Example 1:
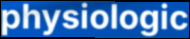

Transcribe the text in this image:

physiologic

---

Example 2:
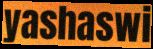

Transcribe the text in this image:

yashaswi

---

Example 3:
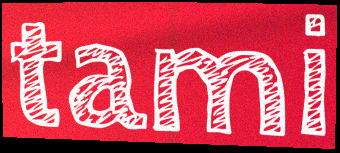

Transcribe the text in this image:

tami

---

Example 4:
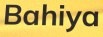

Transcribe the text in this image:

Bahiya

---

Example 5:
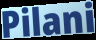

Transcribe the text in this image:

Pilani